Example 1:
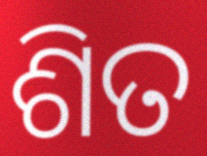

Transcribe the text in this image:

ଶିତ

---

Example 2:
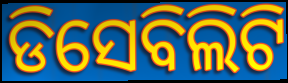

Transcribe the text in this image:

ଡିସେବିଲିଟି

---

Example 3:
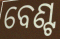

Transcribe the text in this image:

ବେଣ୍ଟ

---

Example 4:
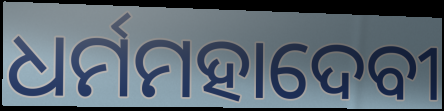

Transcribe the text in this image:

ଧର୍ମମହାଦେବୀ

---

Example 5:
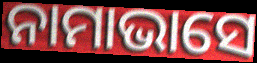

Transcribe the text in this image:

ନାମାଭାସେ